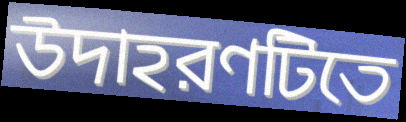
উদাহরণটিতে